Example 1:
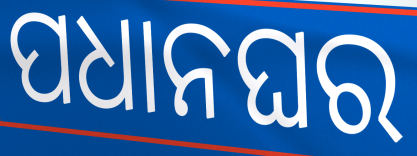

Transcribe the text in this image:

ପଧାନଘର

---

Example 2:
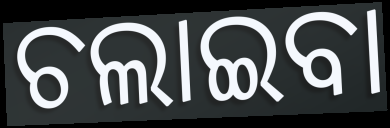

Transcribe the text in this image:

ଚଲାଇବା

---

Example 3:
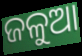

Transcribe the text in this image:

ଜଳୁଆ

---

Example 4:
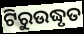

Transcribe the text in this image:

ଟିରୁଉଦ୍ଧୃତ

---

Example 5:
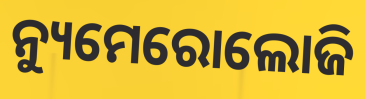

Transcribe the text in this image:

ନ୍ୟୁମେରୋଲୋଜି